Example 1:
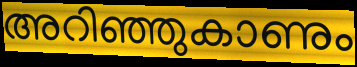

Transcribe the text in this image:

അറിഞ്ഞുകാണും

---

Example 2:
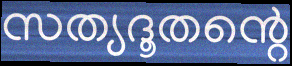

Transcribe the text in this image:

സത്യദൂതന്റെ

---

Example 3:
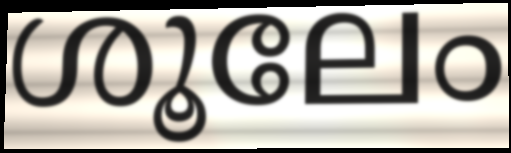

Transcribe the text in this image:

ശൂലേം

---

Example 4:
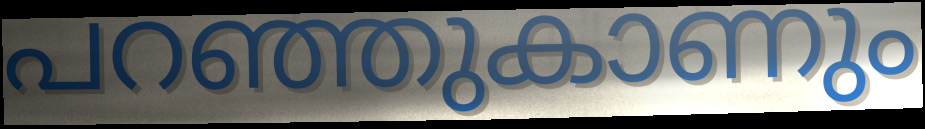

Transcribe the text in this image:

പറഞ്ഞുകാണും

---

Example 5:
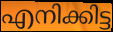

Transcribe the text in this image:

എനിക്കിട്ട